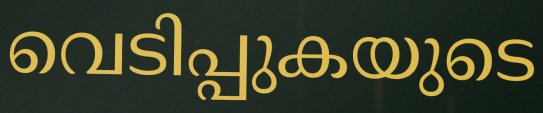
വെടിപ്പുകയുടെ